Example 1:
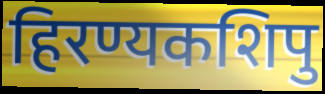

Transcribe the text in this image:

हिरण्यकशिपु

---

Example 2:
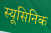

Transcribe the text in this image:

स्यूसिनिक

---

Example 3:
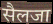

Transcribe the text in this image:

सैलजा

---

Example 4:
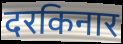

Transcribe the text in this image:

दरकिनार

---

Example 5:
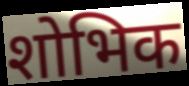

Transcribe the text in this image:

शोभिक